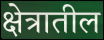
क्षेत्रातील